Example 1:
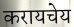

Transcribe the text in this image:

करायचेय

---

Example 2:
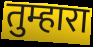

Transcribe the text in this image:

तुम्हारा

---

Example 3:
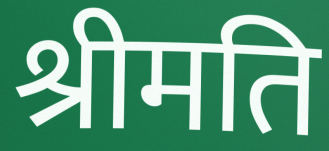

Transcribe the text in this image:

श्रीमति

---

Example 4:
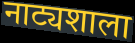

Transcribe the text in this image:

नाट्यशाला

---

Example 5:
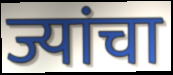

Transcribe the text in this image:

ज्यांचा